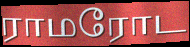
ராமரோட